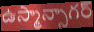
ఉస్మాన్సాగర్